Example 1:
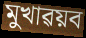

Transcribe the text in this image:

মুখাৱয়ব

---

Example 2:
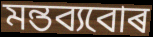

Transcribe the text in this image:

মন্তব্যবোৰ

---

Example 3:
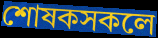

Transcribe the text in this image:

শোষকসকলে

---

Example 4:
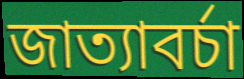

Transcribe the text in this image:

জাত্যাবৰ্চা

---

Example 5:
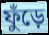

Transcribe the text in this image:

ফুঁড়ে